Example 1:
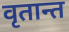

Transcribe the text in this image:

वृतान्त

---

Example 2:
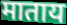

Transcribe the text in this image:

माताय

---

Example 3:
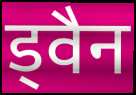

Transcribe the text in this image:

ड्वैन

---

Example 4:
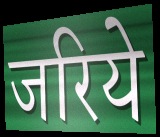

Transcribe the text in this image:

जरिये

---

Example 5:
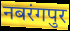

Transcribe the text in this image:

नबरंगपुर